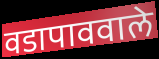
वडापाववाले